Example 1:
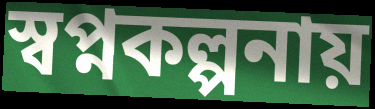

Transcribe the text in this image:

স্বপ্নকল্পনায়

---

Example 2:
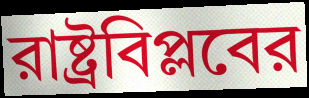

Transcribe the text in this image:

রাষ্ট্রবিপ্লবের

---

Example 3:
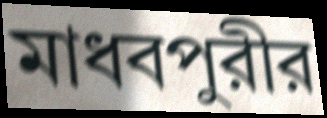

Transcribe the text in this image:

মাধবপুরীর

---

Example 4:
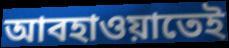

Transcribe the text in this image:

আবহাওয়াতেই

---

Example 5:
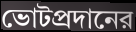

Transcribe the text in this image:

ভোটপ্রদানের